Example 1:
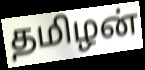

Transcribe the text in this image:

தமிழன்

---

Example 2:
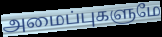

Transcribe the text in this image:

அமைப்புகளுமே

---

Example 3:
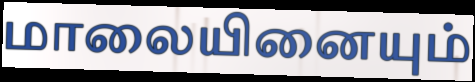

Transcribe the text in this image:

மாலையினையும்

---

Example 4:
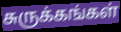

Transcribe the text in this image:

சுருக்கங்கள்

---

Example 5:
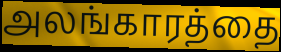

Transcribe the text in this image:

அலங்காரத்தை